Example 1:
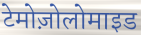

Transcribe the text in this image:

टेमोज़ोलोमाइड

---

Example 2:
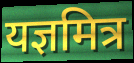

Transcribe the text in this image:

यज्ञमित्र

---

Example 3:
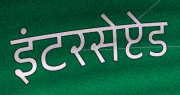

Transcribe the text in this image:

इंटरसेप्टेड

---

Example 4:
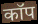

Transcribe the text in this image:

कॉप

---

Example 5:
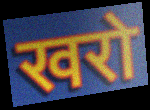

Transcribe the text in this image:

खरो